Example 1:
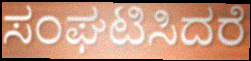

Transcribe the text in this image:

ಸಂಘಟಿಸಿದರೆ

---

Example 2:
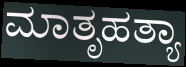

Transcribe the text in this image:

ಮಾತೃಹತ್ಯಾ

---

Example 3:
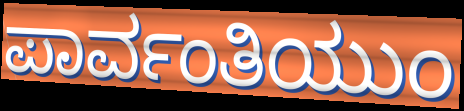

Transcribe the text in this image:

ಪಾರ್ವಂತಿಯುಂ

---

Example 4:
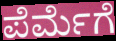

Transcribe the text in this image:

ಪೆರ್ಮೆಗೆ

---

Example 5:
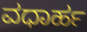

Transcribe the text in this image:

ವಧಾರ್ಹ